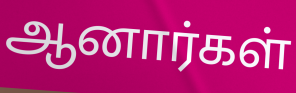
ஆனார்கள்